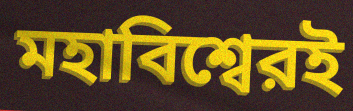
মহাবিশ্বেরই